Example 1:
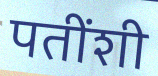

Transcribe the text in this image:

पतींशी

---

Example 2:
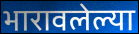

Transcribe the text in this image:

भारावलेल्या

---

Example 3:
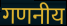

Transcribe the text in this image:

गणनीय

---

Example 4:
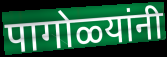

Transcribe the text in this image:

पागोळ्यांनी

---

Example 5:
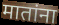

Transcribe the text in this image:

मातांना